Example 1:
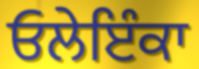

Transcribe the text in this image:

ਓਲੇਇੰਕਾ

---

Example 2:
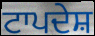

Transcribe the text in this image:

ਟਾਪਦੇਸ਼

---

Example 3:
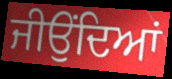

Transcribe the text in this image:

ਜੀਉਂਦਿਆਂ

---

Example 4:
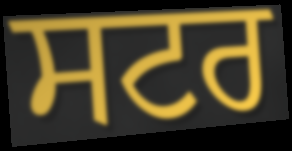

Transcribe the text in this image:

ਸਟਰ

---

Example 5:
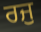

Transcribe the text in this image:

ਰਜੁ